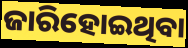
ଜାରିହୋଇଥିବା